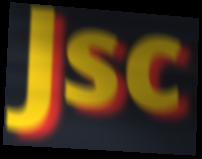
Jsc